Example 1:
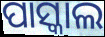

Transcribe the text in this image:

ପାସ୍କାଲ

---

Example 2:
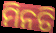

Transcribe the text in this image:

ମିନତି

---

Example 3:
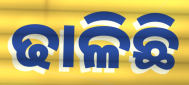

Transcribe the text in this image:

ଢାଳିଛି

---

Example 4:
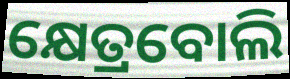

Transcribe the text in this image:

କ୍ଷେତ୍ରବୋଲି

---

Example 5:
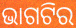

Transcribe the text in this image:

ଭାଗଟିର